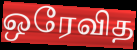
ஒரேவித